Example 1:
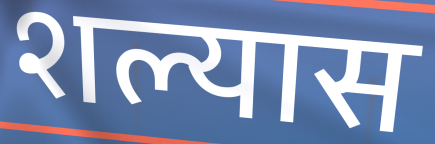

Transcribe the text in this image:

शल्यास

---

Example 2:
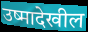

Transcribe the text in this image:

उष्मादेखील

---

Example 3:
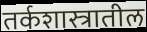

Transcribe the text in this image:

तर्कशास्त्रातील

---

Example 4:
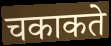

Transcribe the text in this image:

चकाकते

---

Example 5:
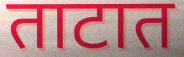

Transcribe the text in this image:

ताटात